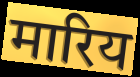
मारिय